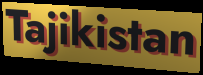
Tajikistan